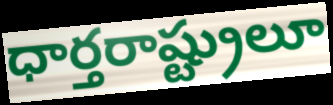
ధార్తరాష్ట్రులూ